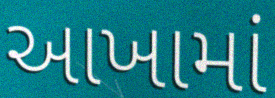
આખામાં